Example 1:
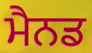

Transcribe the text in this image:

ਮੈਨਡ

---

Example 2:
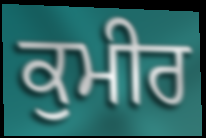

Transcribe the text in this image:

ਕੁਮੀਰ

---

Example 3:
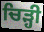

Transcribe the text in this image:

ਚਿੜ੍ਹੀ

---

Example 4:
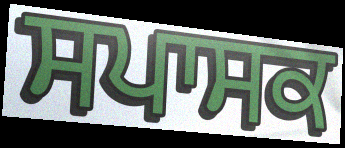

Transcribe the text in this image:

ਸਪਾਸਕ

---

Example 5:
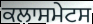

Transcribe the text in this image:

ਕਲਾਸਮੇਟਸ